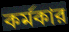
কর্মকার